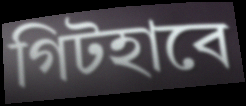
গিটহাবে